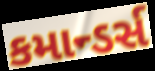
કમાન્ડર્સ